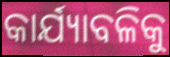
କାର୍ଯ୍ୟାବଳିକୁ